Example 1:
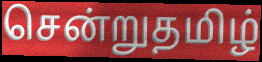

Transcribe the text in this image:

சென்றுதமிழ்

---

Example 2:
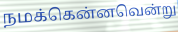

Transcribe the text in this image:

நமக்கென்னவென்று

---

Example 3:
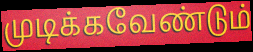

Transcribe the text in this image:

முடிக்கவேண்டும்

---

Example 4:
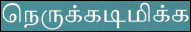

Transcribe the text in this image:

நெருக்கடிமிக்க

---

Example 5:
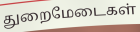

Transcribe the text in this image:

துறைமேடைகள்